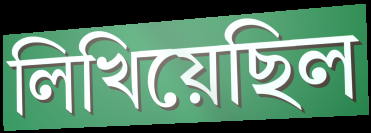
লিখিয়েছিল